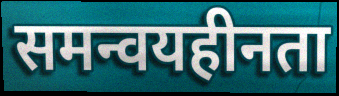
समन्वयहीनता